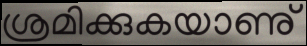
ശ്രമിക്കുകയാണു്